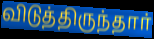
விடுத்திருந்தார்